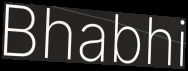
Bhabhi